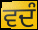
ਵਦੰ